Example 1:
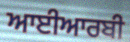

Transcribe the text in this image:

ਆਈਆਰਬੀ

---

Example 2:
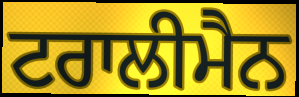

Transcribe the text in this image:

ਟਰਾਲੀਮੈਨ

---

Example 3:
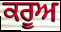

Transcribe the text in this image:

ਕਰੂਅ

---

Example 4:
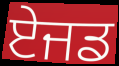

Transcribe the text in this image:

ਏਜਡ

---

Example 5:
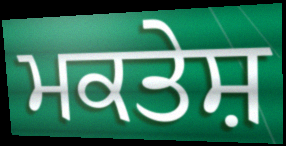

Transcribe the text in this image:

ਮਕਤੇਸ਼